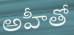
అహీతో